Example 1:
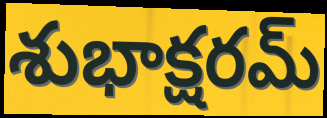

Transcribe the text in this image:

శుభాక్షరమ్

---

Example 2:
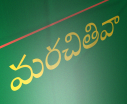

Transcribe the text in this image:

మరచితివా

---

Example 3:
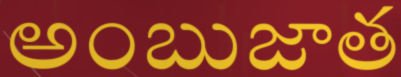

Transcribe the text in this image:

అంబుజాత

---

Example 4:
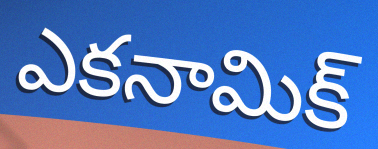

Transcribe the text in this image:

ఎకనామిక్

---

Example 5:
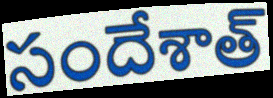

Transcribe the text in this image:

సందేశాత్